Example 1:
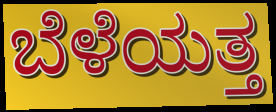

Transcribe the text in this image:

ಬೆಳೆಯತ್ತ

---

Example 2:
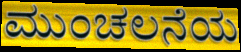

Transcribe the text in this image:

ಮುಂಚಲನೆಯ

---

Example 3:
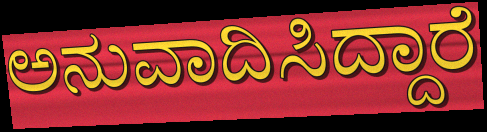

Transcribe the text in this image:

ಅನುವಾದಿಸಿದ್ದಾರೆ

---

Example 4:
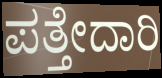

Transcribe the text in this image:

ಪತ್ತೇದಾರಿ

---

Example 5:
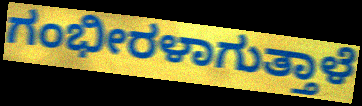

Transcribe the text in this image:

ಗಂಭೀರಳಾಗುತ್ತಾಳೆ